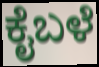
ಕೈಬಳೆ